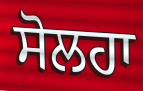
ਸੋਲਹਾ